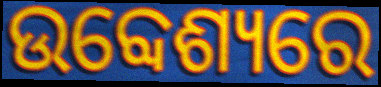
ଉବ୍ଦେଶ୍ୟରେ